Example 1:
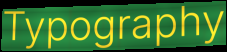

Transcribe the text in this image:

Typography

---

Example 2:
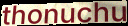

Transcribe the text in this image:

thonuchu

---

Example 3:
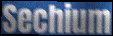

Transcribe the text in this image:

Sechium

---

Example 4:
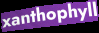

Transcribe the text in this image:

xanthophyll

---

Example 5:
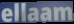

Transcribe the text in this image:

ellaam